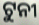
ଟୁନୀ